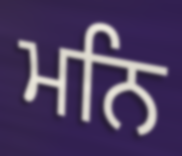
ਮਨਿ